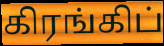
கிரங்கிப்